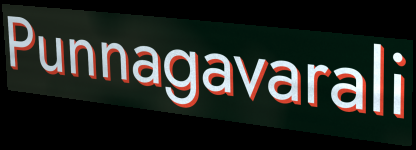
Punnagavarali